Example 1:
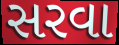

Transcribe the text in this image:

સરવા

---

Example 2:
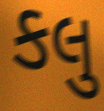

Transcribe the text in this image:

કલુ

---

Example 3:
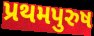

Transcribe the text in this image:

પ્રથમપુરુષ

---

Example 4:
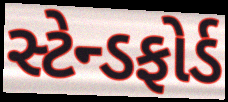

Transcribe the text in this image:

સ્ટેન્ડફોર્ડ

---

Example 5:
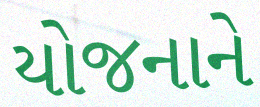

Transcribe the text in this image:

યોજનાને